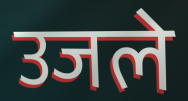
उजले